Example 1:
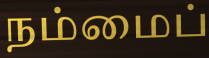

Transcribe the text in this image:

நம்மைப்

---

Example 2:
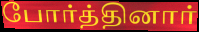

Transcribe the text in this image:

போர்த்தினார்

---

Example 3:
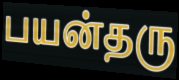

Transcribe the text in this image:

பயன்தரு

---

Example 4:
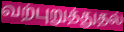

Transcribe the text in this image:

வற்புறுத்துதல்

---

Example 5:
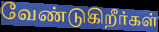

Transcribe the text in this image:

வேண்டுகிறீர்கள்